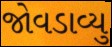
જોવડાવ્યુ